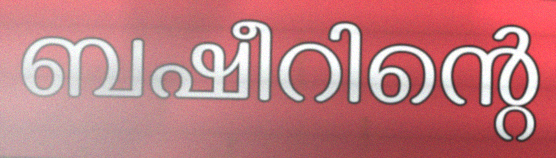
ബഷീറിന്റെ